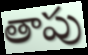
తాపు